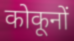
कोकूनों